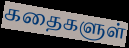
கதைகளுள்